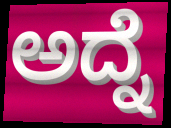
ಅದ್ನೆ